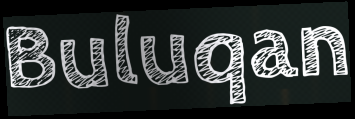
Buluqan